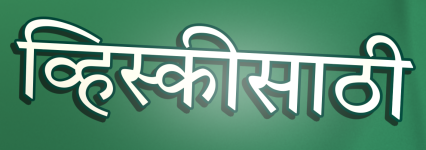
व्हिस्कीसाठी